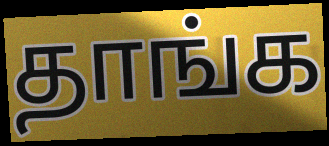
தாங்க